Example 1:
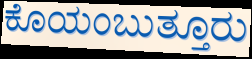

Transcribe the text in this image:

ಕೊಯಂಬುತ್ತೂರು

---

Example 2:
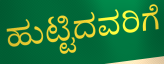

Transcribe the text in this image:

ಹುಟ್ಟಿದವರಿಗೆ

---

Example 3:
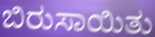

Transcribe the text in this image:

ಬಿರುಸಾಯಿತು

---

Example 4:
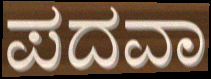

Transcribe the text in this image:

ಪದವಾ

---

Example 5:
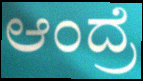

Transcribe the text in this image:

ಆಂದ್ರೆ